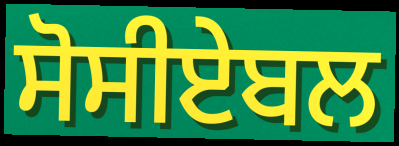
ਸੋਸੀਏਬਲ